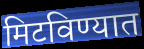
मिटविण्यात